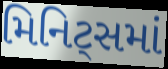
મિનિટ્સમાં